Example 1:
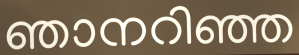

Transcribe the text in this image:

ഞാനറിഞ്ഞ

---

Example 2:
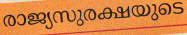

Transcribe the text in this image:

രാജ്യസുരക്ഷയുടെ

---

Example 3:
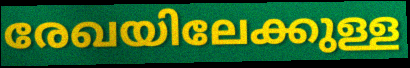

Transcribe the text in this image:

രേഖയിലേക്കുള്ള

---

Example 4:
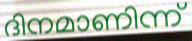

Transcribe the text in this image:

ദിനമാണിന്ന്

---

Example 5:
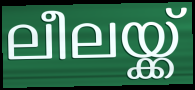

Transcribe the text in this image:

ലീലയ്ക്ക്